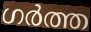
ഗർത്ത